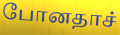
போனதாச்